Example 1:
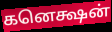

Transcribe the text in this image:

கனெக்ஷன்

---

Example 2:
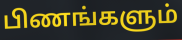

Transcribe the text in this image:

பிணங்களும்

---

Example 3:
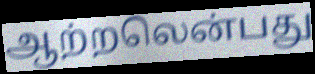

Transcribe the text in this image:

ஆற்றலென்பது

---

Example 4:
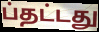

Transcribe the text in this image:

ப்தட்டது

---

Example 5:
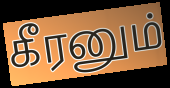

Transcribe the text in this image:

கீரனும்